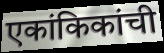
एकांकिकांची